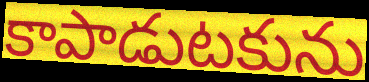
కాపాడుటకును